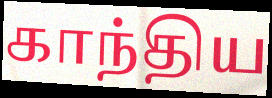
காந்திய